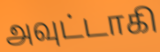
அவுட்டாகி